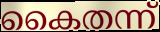
കൈതന്ന്